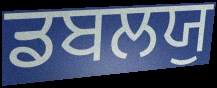
ਡਬਲਯੁ